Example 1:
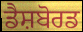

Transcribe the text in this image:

ਡੈਸ਼ਬੋਰਡ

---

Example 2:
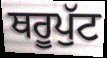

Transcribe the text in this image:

ਥਰੂਪੁੱਟ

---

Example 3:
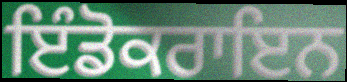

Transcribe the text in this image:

ਇੰਡੋਕਰਾਇਨ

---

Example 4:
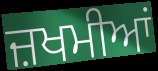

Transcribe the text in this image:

ਜ਼ਖਮੀਆਂ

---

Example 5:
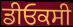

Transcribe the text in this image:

ਡੀਓਕਸੀ